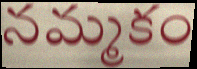
నమ్మకం